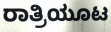
ರಾತ್ರಿಯೂಟ